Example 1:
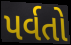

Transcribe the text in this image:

પર્વતો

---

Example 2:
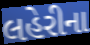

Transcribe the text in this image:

લહેરીના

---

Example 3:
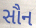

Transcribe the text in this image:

સૌન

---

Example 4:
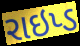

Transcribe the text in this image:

રાઇપ્ડ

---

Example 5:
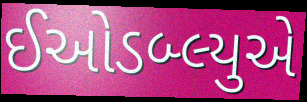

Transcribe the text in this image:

ઈઓડબ્લ્યુએ